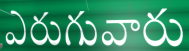
ఎరుగువారు